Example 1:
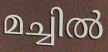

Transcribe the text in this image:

മച്ചിൽ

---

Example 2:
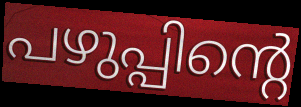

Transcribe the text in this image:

പഴുപ്പിന്റെ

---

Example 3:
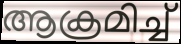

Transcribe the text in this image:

ആക്രമിച്ച്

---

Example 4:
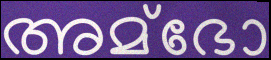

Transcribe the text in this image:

അമ്ഭോ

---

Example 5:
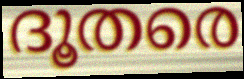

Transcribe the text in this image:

ദൂതരെ